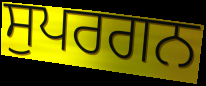
ਸੁਪਰਗਨ